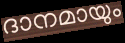
ദാനമായും